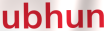
ubhun